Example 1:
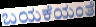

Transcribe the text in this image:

ಬಯಕೆಯಂತೆ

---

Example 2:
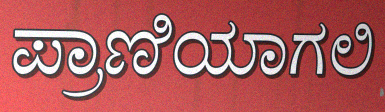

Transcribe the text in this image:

ಪ್ರಾಣಿಯಾಗಲಿ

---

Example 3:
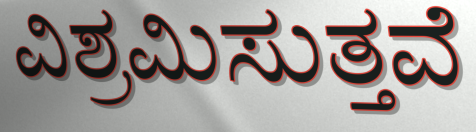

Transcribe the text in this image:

ವಿಶ್ರಮಿಸುತ್ತವೆ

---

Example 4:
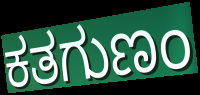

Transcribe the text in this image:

ಕತಗುಣಂ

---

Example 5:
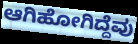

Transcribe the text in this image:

ಆಗಿಹೋಗಿದ್ದೆವು